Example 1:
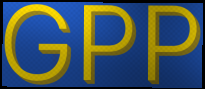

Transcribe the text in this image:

GPP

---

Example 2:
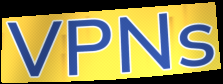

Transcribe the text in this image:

VPNs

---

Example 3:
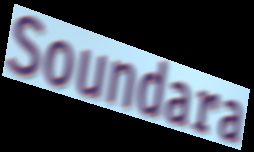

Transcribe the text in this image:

Soundara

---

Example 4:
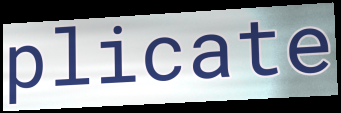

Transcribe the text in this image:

plicate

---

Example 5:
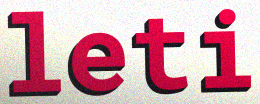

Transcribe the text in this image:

leti